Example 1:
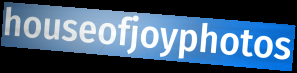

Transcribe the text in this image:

houseofjoyphotos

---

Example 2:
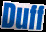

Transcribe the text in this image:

Duff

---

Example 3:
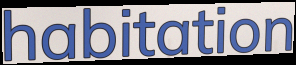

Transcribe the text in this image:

habitation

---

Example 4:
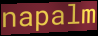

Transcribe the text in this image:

napalm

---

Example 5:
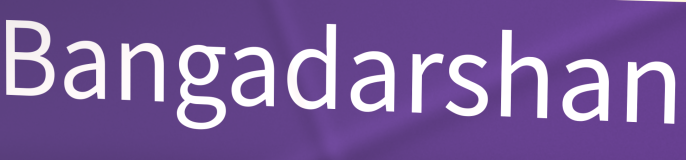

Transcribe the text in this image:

Bangadarshan